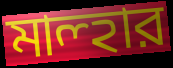
মাল্হার